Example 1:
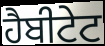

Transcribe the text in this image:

ਹੈਬੀਟੇਟ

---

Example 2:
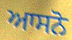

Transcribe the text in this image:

ਆਸਨੋ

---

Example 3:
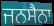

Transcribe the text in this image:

ਜਨਸੈਨਾ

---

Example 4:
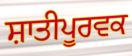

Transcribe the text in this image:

ਸ਼ਾਤੀਪੂਰਵਕ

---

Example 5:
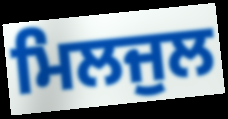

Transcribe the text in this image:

ਮਿਲਜੁਲ